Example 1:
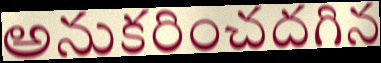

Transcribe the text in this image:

అనుకరించదగిన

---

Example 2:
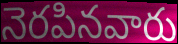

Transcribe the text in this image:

నెరపినవారు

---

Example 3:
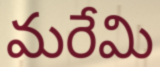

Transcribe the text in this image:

మరేమి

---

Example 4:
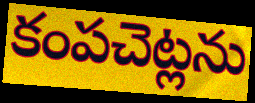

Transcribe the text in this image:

కంపచెట్లను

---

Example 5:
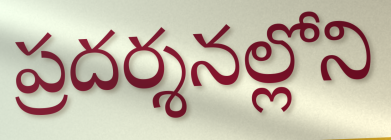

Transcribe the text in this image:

ప్రదర్శనల్లోని